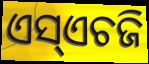
ଏସ୍ଏଚଜି